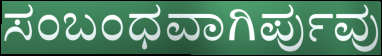
ಸಂಬಂಧವಾಗಿರ್ಪುವು